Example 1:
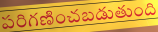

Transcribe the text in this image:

పరిగణించబడుతుంది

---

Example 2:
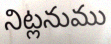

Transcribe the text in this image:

నిట్లనుము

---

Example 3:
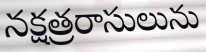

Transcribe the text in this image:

నక్షత్రరాసులును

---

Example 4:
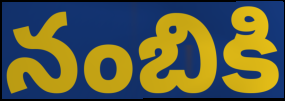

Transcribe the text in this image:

నంబికి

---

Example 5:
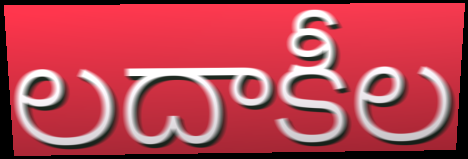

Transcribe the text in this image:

లదాకీల